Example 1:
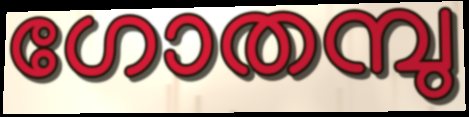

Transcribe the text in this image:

ഗോതമ്പു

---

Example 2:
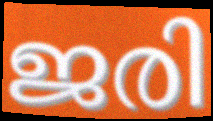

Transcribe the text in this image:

ജരി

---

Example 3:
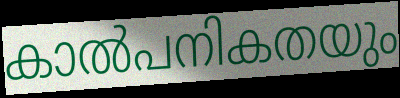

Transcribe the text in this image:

കാൽപനികതയും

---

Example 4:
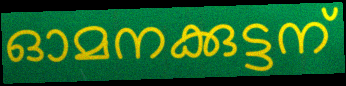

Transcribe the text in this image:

ഓമനക്കുട്ടന്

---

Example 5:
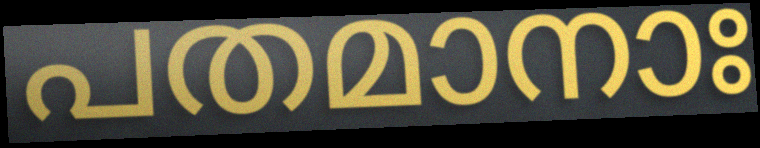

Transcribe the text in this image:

പതമാനാഃ